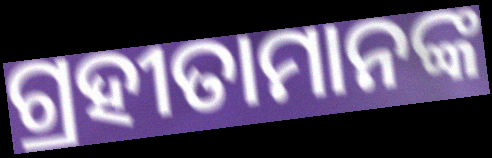
ଗ୍ରହୀତାମାନଙ୍କ